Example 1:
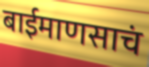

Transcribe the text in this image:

बाईमाणसाचं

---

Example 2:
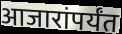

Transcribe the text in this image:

आजारांपर्यंत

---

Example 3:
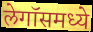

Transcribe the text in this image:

लेगॉसमध्ये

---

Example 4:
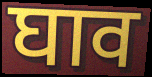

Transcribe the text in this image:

घाव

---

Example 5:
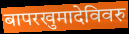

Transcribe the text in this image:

बापरखुमादेविवरु